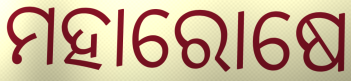
ମହାରୋଷେ